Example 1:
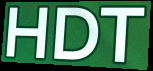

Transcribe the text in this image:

HDT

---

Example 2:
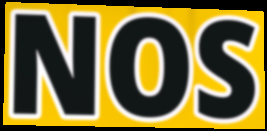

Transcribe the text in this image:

NOS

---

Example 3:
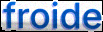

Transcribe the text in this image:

froide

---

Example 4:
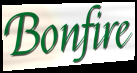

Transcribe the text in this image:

Bonfire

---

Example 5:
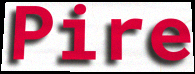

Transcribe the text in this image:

Pire